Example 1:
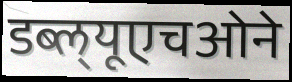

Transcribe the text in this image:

डब्ल्यूएचओने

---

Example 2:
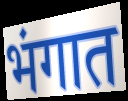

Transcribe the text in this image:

भंगात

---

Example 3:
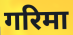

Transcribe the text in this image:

गरिमा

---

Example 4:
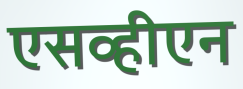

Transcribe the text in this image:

एसव्हीएन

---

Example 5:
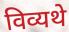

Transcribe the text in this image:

विव्यथे